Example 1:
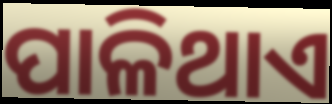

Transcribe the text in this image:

ପାଳିଥାଏ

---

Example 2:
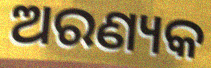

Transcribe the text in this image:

ଅରଣ୍ୟକ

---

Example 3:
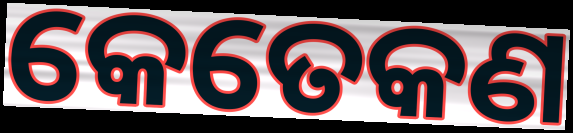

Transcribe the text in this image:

କେତେକଣ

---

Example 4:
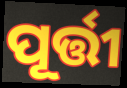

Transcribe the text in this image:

ପୂର୍ତ୍ତୀ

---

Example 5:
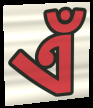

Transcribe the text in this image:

ଏଁ